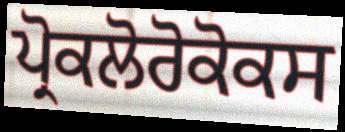
ਪ੍ਰੋਕਲੋਰੋਕੋਕਸ